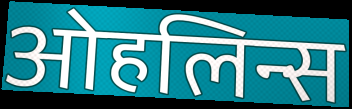
ओहलिन्स